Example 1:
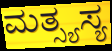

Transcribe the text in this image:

ಮತ್ಸ್ಯಸ್ಯ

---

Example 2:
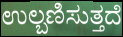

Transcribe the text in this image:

ಉಲ್ಬಣಿಸುತ್ತದೆ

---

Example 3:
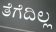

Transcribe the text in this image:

ತೆಗೆದಿಲ್ಲ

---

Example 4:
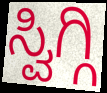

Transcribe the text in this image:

ಸ್ವಿಗ್ಗಿ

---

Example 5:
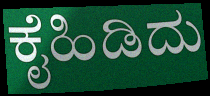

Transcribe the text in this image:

ಕೈಹಿಡಿದು